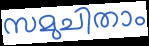
സമുചിതാം